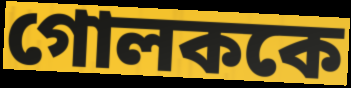
গোলককে